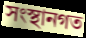
সংস্থানগত